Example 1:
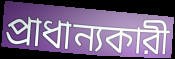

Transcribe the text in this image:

প্রাধান্যকারী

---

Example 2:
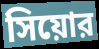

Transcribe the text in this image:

সিয়োর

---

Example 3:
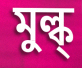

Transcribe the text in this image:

মুল্ক্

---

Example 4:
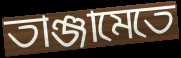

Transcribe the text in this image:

তাঞ্জামেতে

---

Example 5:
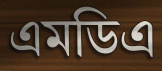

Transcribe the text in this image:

এমডিএ